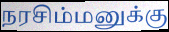
நரசிம்மனுக்கு